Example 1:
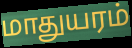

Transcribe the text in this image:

மாதுயரம்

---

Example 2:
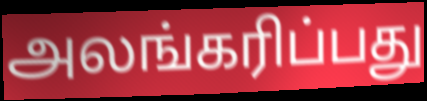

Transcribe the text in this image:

அலங்கரிப்பது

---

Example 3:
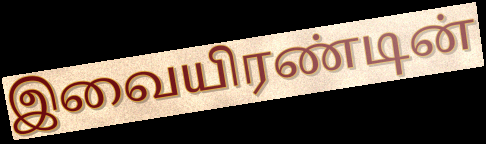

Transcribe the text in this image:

இவையிரண்டின்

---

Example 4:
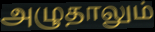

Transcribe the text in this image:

அழுதாலும்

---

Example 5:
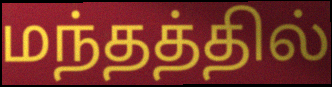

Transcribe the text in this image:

மந்தத்தில்